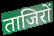
ताजिरों